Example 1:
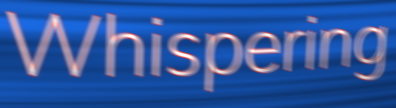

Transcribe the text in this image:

Whispering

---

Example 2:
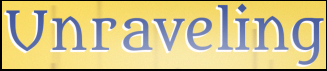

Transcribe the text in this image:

Unraveling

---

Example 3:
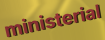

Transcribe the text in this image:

ministerial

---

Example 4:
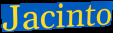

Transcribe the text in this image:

Jacinto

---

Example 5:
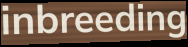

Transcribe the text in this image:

inbreeding